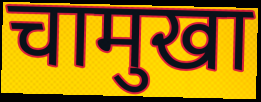
चामुखा